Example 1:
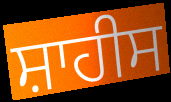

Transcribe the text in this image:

ਸ਼ਾਹੀਸ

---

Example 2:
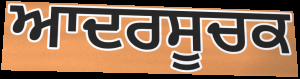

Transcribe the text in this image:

ਆਦਰਸੂਚਕ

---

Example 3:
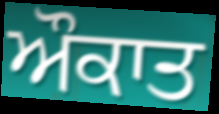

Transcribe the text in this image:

ਔਕਾਤ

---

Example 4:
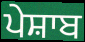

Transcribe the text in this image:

ਪੇਸ਼ਾਬ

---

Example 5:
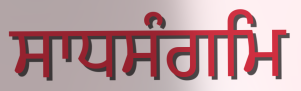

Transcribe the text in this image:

ਸਾਧਸੰਗਮਿ